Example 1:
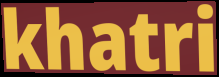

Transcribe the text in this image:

khatri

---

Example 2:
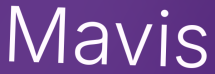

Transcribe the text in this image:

Mavis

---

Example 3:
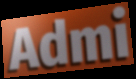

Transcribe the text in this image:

Admi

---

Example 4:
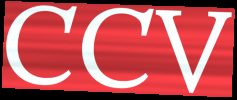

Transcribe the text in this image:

CCV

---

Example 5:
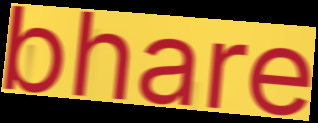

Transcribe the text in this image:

bhare